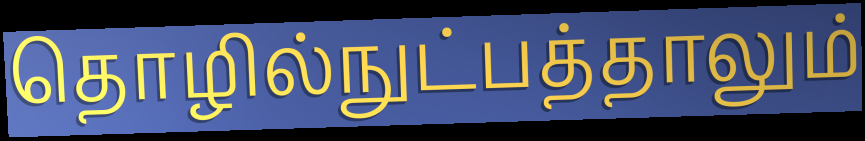
தொழில்நுட்பத்தாலும்